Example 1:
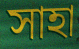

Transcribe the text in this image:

সাহা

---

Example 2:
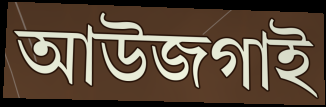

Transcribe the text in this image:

আউজগাই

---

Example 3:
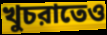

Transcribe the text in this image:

খুচরাতেও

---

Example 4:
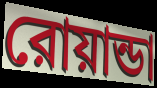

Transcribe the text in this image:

রোয়ান্ডা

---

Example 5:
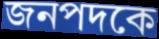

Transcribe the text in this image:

জনপদকে